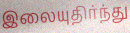
இலையுதிர்ந்து